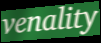
venality